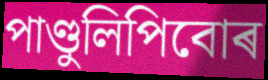
পাণ্ডুলিপিবোৰ